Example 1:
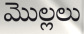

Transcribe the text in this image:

మొల్లలు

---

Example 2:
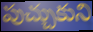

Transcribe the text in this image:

పుచ్చుకుని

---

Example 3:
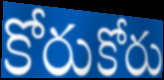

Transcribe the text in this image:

కోరుకోరు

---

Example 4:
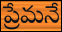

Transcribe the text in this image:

ప్రేమనే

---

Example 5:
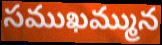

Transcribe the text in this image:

సముఖమ్మున